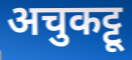
अचुकट्टू